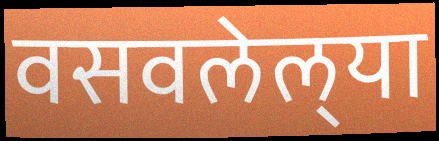
वसवलेल्या